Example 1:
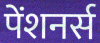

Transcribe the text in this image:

पेंशनर्स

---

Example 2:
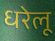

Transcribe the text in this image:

धरेलू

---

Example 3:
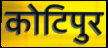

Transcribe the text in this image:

कोटिपुर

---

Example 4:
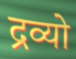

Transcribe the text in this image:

द्रव्यो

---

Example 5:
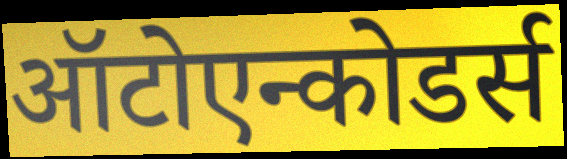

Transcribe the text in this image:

ऑटोएन्कोडर्स